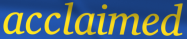
acclaimed